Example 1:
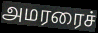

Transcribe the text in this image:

அமரரைச்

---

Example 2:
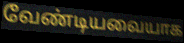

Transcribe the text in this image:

வேண்டியவையாக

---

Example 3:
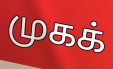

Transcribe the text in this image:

முகக்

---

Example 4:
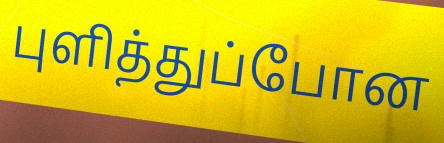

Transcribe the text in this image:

புளித்துப்போன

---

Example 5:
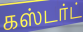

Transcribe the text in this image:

கஸ்டர்ட்